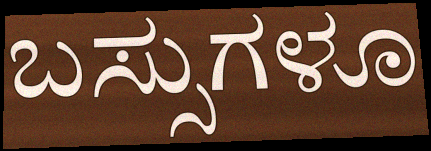
ಬಸ್ಸುಗಳೂ